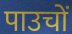
पाउचों